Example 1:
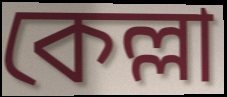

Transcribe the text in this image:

কেল্লা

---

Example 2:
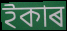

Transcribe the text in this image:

ইকাৰ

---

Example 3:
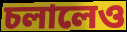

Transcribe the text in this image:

চলালেও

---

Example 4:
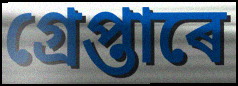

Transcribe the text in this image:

গ্ৰেপ্তাৰে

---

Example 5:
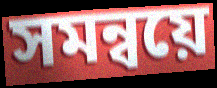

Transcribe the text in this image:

সমন্বয়ে